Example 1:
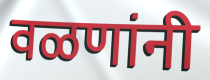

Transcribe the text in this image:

वळणांनी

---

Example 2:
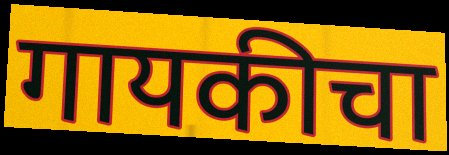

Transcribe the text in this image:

गायकीचा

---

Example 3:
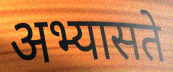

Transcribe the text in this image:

अभ्यासते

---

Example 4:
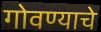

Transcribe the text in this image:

गोवण्याचे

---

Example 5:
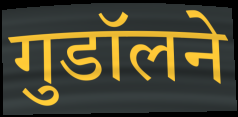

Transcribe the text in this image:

गुडॉलने